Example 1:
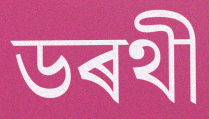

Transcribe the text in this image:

ডৰথী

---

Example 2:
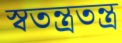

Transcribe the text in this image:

স্বতন্ত্ৰতন্ত্ৰ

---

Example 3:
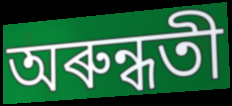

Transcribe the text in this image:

অৰুন্ধতী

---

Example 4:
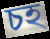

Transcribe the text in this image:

চহ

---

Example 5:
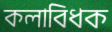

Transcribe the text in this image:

কলাবিধক